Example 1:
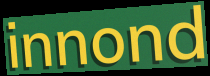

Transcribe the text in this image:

innond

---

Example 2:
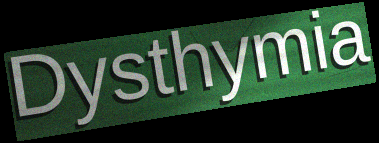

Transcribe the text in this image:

Dysthymia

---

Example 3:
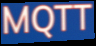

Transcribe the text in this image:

MQTT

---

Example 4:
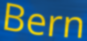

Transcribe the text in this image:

Bern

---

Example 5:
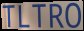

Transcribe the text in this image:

TLTRO